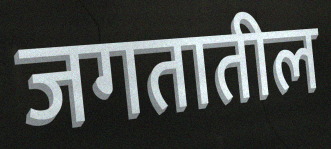
जगतातील